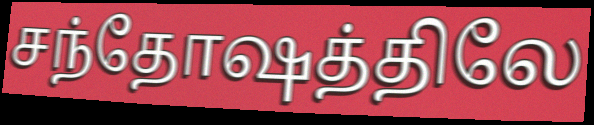
சந்தோஷத்திலே